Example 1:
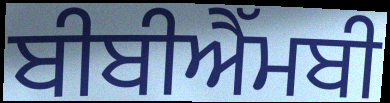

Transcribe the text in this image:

ਬੀਬੀਐੱਮਬੀ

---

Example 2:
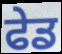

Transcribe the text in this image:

ਫੇਡ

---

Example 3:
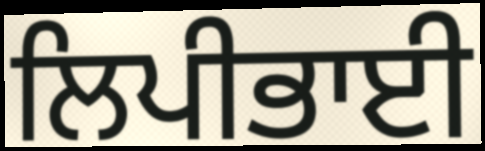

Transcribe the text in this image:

ਲਿਪੀਭਾਈ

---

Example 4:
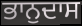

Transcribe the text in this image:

ਭਾਨੁਦਾਸ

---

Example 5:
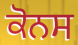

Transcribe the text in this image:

ਕੋਨਸ